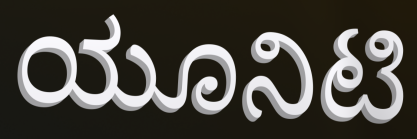
ಯೂನಿಟಿ